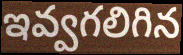
ఇవ్వగలిగిన